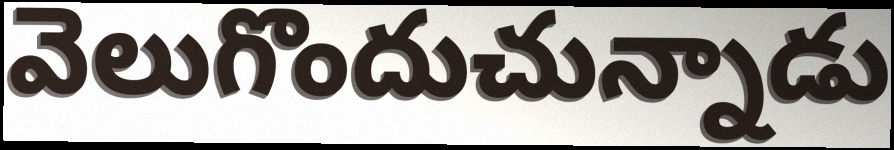
వెలుగొందుచున్నాడు